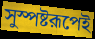
সুস্পষ্টরূপেই